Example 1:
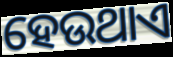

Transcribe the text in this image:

ହେଉଥାଏ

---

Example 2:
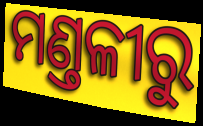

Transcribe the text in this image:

ମଣ୍ତଳୀରୁ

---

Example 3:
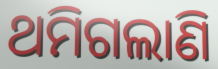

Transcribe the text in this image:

ଥମିଗଲାଣି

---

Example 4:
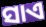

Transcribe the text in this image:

ସାଏ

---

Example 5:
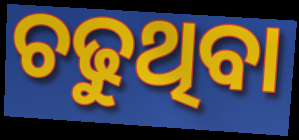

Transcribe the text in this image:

ଚଢୁଥିବା